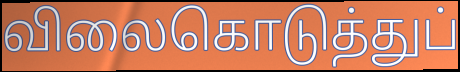
விலைகொடுத்துப்